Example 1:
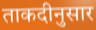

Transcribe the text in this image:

ताकदीनुसार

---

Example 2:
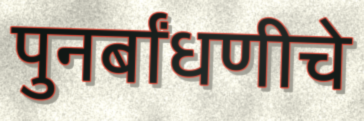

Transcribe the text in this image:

पुनर्बांधणीचे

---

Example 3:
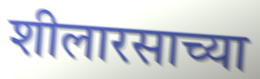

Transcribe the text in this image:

शीलारसाच्या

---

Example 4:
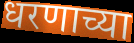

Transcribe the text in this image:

धरणाच्या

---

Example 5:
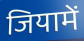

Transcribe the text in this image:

जियामें